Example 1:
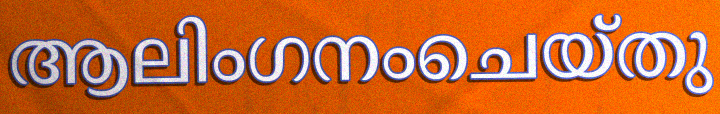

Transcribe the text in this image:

ആലിംഗനംചെയ്തു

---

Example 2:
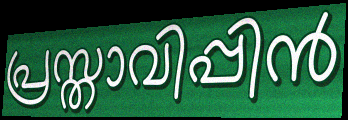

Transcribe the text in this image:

പ്രസ്താവിപ്പിൻ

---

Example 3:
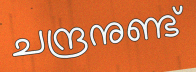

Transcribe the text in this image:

ചന്ദ്രനുണ്ട്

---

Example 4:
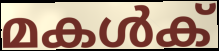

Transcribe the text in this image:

മകൾക്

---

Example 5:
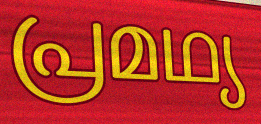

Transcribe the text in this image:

പ്രമഥ്യ